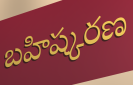
బహిష్కరణ